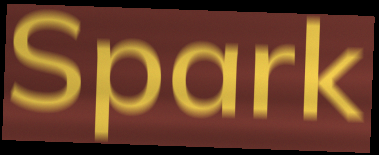
Spark